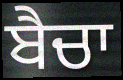
ਬੈਚਾ